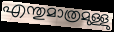
എന്തുമാത്രമുള്ളു